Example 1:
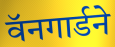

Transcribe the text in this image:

वॅनगार्डने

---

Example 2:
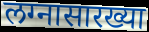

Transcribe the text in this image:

लग्नासारख्या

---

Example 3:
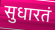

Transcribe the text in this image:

सुधारतं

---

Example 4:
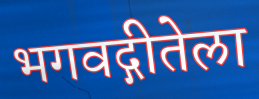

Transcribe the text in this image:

भगवद्गीतेला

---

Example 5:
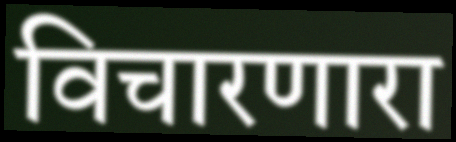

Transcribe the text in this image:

विचारणारा